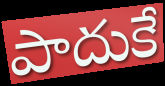
పాదుకే